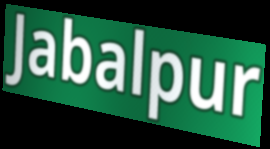
Jabalpur